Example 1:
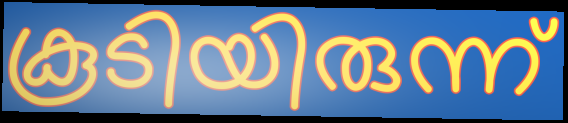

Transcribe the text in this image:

കൂടിയിരുന്ന്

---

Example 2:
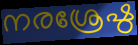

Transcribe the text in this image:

നരശ്രേഷ്ഠ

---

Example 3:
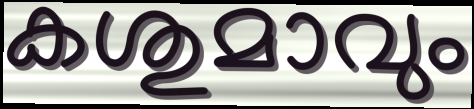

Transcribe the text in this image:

കശുമാവും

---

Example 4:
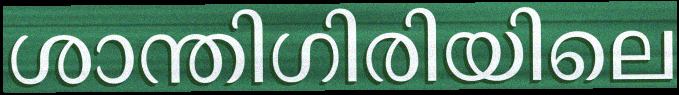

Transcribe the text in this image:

ശാന്തിഗിരിയിലെ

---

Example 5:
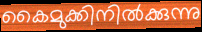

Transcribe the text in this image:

കൈമുക്കിനിൽക്കുന്നു